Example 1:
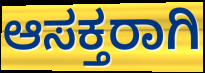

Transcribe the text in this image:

ಆಸಕ್ತರಾಗಿ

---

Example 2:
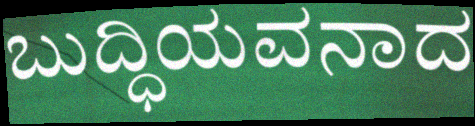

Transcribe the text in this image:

ಬುದ್ಧಿಯವನಾದ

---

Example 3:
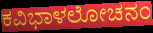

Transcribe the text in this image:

ಕವಿಭಾಳಲೋಚನಂ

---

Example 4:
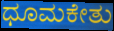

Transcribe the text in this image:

ಧೂಮಕೇತು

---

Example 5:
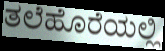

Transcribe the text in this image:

ತಲೆಹೊರೆಯಲ್ಲಿ